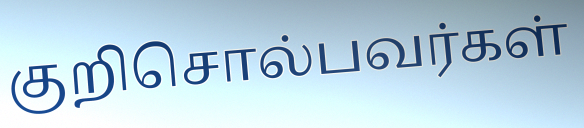
குறிசொல்பவர்கள்